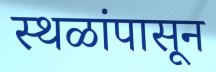
स्थळांपासून